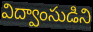
విద్వాంసుడిని